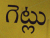
గెట్లు